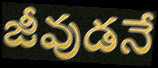
జీవుడనే